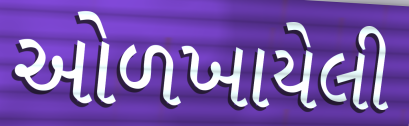
ઓળખાયેલી